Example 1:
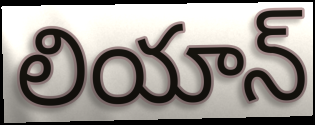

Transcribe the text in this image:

లియాన్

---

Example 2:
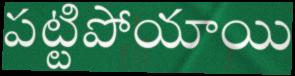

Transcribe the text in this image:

పట్టిపోయాయి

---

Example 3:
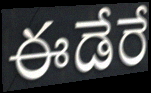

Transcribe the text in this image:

ఈడేరే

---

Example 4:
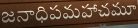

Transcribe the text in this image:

జనాధిపమహాచమూ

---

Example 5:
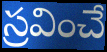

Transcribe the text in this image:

స్రవించే